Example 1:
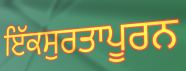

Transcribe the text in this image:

ਇੱਕਸੁਰਤਾਪੂਰਨ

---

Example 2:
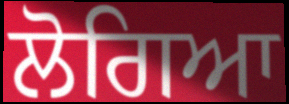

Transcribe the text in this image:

ਲੋਗਿਆ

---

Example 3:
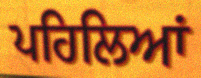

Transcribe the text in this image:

ਪਹਿਲਿਆਂ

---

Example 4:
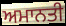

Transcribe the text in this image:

ਅਮਾਨਤੀ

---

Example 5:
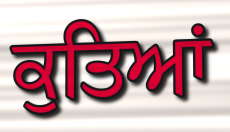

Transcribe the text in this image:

ਕੁਤਿਆਂ